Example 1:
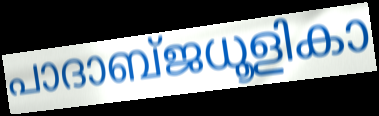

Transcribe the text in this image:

പാദാബ്ജധൂളികാ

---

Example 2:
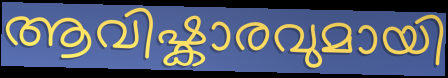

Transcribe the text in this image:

ആവിഷ്കാരവുമായി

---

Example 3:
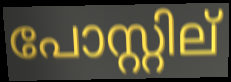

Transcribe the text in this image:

പോസ്റ്റില്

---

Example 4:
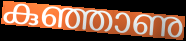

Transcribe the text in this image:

കുഞ്ഞാണു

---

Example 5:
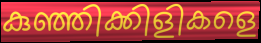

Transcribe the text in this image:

കുഞ്ഞിക്കിളികളെ